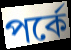
পর্কে